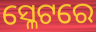
ସ୍ଳେଟରେ